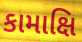
કામાક્ષિ